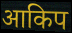
आकिप